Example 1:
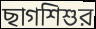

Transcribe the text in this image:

ছাগশিশুর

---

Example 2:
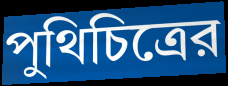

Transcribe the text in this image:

পুথিচিত্রের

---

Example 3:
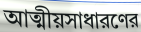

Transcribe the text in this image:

আত্মীয়সাধারণের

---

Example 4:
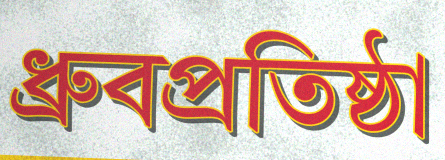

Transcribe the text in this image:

ধ্রুবপ্রতিষ্ঠা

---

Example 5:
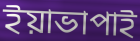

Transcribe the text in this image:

ইয়াভাপাই